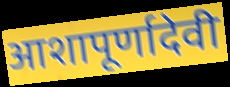
आशापूर्णादेवी